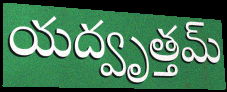
యద్వృత్తమ్